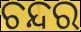
ଚନ୍ଦର